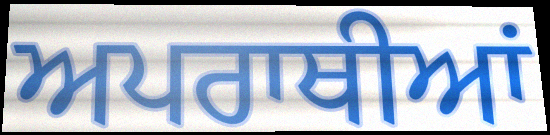
ਅਪਰਾਥੀਆਂ